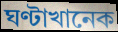
ঘণ্টাখানেক